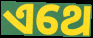
ଏଥେ